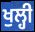
ਖੁਲ੍ਹੀ